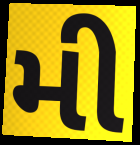
મી